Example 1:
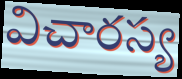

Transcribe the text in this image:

విచారస్య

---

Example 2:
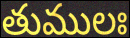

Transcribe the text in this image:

తుములః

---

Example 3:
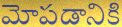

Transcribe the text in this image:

మోపడానికి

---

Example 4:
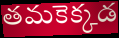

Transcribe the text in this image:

తమకెక్కడ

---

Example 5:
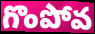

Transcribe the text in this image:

గొంపోవ